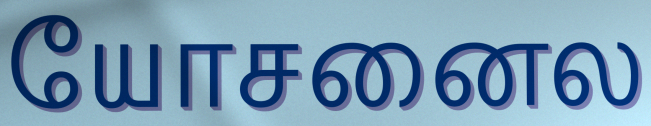
யோசனைல